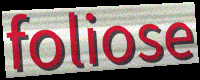
foliose